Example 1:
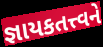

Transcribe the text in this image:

જ્ઞાયકતત્ત્વને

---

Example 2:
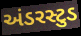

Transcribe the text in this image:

અંડરસ્ટુડ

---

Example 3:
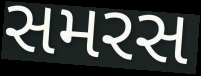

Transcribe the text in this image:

સમરસ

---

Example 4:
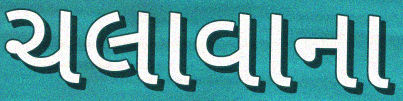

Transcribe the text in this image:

ચલાવાના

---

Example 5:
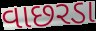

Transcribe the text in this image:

વાછરડા